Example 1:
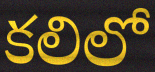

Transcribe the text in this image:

కలిలో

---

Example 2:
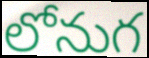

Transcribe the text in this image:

లోనుగ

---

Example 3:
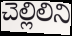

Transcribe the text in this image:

చెల్లిలిని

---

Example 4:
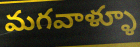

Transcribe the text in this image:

మగవాళ్ళూ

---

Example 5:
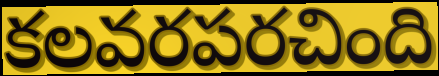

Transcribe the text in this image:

కలవరపరచింది